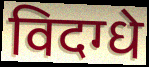
विदग्धे